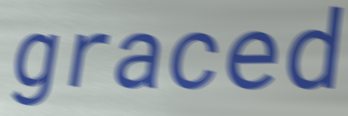
graced